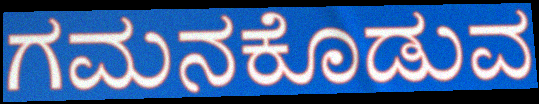
ಗಮನಕೊಡುವ